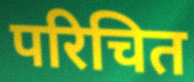
परिचित